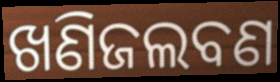
ଖଣିଜଲବଣ